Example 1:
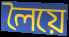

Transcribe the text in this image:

লৈয়ে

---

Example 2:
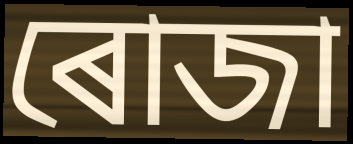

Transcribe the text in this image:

ৰোজা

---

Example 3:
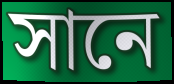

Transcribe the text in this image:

সানে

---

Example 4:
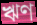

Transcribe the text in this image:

ঋণ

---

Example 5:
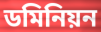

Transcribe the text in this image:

ডমিনিয়ন